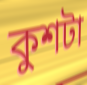
কুশটা